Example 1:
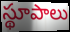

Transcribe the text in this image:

స్థూపాలు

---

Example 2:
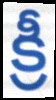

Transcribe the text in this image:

క్రీ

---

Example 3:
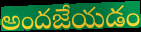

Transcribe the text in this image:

అందజేయడం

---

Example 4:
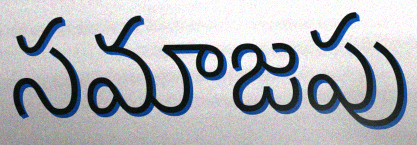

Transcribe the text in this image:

సమాజపు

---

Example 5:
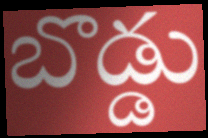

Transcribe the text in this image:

బొడ్డు